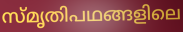
സ്മൃതിപഥങ്ങളിലെ